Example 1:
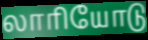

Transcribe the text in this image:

லாரியோடு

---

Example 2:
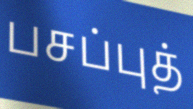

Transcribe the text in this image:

பசப்புத்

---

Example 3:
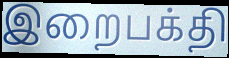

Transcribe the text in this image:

இறைபக்தி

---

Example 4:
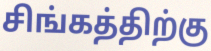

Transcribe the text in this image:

சிங்கத்திற்கு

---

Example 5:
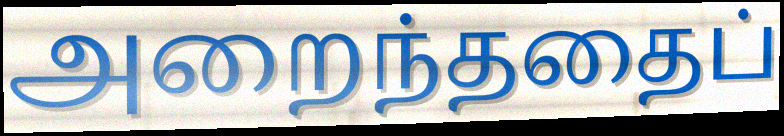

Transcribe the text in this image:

அறைந்ததைப்